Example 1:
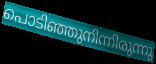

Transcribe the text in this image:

പൊടിഞ്ഞുനിന്നിരുന്നു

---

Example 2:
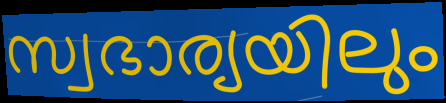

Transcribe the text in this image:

സ്വഭാര്യയിലും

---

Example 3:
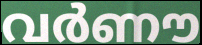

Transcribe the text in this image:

വർണൗ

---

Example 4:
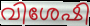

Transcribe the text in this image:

വിശേഷി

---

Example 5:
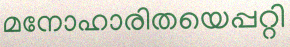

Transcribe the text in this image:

മനോഹാരിതയെപ്പറ്റി